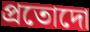
প্রতোদো